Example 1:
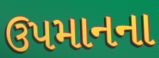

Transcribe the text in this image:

ઉપમાનના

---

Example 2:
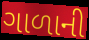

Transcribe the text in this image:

ગાળાની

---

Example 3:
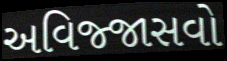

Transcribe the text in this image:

અવિજ્જાસવો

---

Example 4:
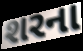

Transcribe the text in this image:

શરના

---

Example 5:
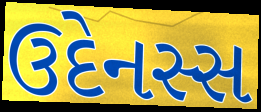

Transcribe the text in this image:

ઉદેનસ્સ